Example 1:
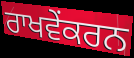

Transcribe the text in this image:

ਰਾਖਵੇਂਕਰਨ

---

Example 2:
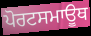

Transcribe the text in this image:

ਪੋਰਟਸਮਾਊਥ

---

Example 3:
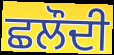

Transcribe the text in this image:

ਛਲੌਦੀ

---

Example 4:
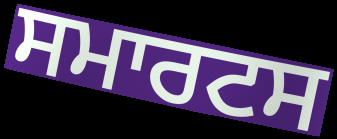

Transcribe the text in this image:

ਸਮਾਰਟਸ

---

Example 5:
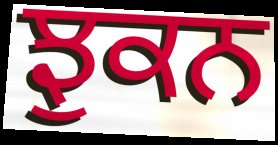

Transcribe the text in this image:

ਝੁਕਨ